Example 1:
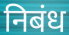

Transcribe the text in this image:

निबंध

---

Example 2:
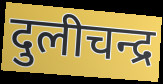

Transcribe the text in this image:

दुलीचन्द्र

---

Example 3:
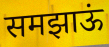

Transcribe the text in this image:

समझाऊं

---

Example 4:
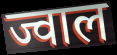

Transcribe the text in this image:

ज्वाल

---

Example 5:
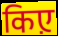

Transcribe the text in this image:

किए़